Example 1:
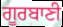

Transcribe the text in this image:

ਗੂਰਬਾਣੀ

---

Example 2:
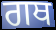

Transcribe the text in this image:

ਗਥ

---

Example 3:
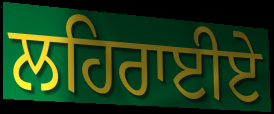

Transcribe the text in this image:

ਲਹਿਰਾਈਏ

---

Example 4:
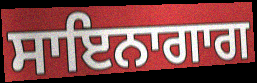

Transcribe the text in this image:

ਸਾਇਨਾਗਾਗ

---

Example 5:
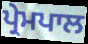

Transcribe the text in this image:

ਪ੍ਰੇਮਪਾਲ